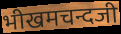
भीखमचन्दजी